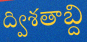
ద్విశతాబ్ది